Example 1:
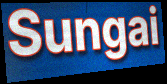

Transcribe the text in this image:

Sungai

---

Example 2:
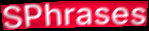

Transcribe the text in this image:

SPhrases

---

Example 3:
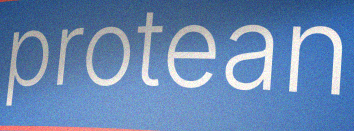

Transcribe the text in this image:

protean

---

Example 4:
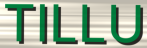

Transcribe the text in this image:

TILLU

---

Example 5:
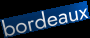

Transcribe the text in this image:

bordeaux